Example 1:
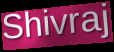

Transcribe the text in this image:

Shivraj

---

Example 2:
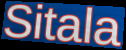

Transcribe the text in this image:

Sitala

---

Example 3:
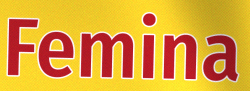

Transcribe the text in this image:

Femina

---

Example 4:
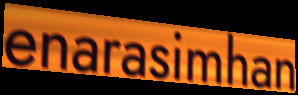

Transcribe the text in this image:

enarasimhan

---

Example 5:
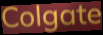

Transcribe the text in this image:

Colgate